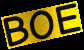
BOE